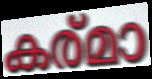
കര്മാ